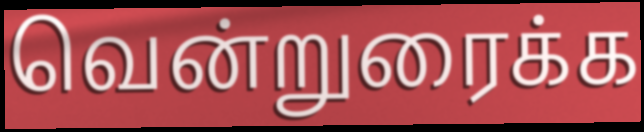
வென்றுரைக்க